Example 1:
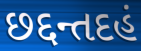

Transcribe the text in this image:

છદ્દન્તદહં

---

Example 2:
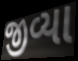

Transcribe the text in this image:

જીવ્યા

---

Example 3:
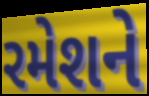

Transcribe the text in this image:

રમેશને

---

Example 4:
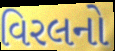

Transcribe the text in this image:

વિરલનો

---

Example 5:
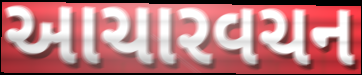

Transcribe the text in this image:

આચારવચન